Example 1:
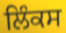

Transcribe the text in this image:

ਲਿੰਕਸ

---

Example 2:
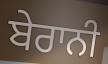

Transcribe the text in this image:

ਬੇਰਾਨੀ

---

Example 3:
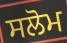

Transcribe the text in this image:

ਸਲੋਮ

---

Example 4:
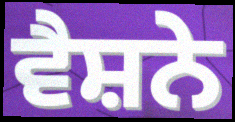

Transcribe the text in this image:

ਵੈਸ਼ਨੇ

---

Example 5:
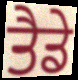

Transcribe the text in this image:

ਤੈਡੇ